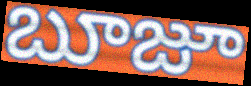
బూజూ